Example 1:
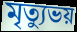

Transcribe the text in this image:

মৃত্যুভয়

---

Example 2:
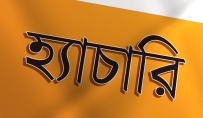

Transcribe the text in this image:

হ্যাচারি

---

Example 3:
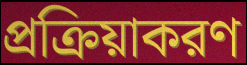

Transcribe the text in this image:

প্রক্রিয়াকরণ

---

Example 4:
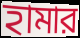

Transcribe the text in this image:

হামার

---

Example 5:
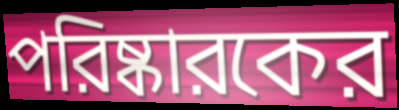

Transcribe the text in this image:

পরিষ্কারকের